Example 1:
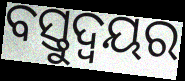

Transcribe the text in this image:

ବସ୍ତୁଦ୍ୱୟର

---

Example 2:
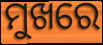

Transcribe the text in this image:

ମୁଖରେ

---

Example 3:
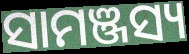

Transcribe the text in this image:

ସାମଞ୍ଜସ୍ୟ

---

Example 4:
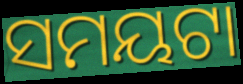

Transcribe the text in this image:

ସମୟଟା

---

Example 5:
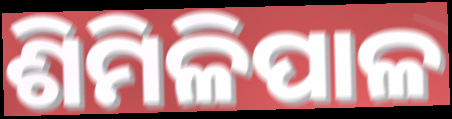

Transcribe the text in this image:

ଶିମିଳିପାଳ